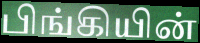
பிங்கியின்